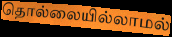
தொல்லையில்லாமல்